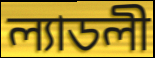
ল্যাডলী